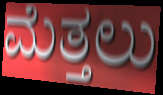
ಮೆತ್ತಲು